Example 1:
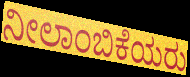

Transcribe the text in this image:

ನೀಲಾಂಬಿಕೆಯರು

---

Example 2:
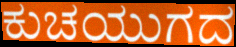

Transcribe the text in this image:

ಕುಚಯುಗದ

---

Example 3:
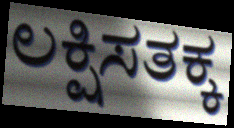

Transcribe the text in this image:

ಲಕ್ಷಿಸತಕ್ಕ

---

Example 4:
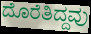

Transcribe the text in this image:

ದೊರೆತಿದ್ದವು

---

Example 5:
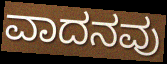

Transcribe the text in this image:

ವಾದನವು